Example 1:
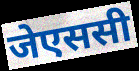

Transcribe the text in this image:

जेएससी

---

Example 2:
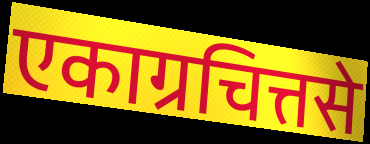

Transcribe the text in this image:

एकाग्रचित्तसे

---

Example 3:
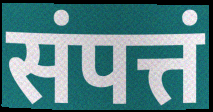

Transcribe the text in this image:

संपत्तं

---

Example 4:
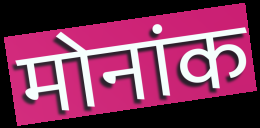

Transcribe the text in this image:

मोनांक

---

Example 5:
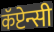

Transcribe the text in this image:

कॅप्टेन्सी